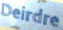
Deirdre